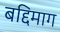
बद्दिमाग